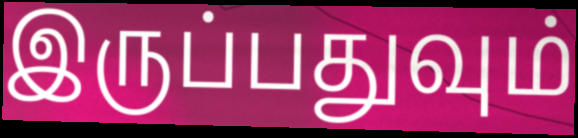
இருப்பதுவும்